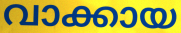
വാക്കായ